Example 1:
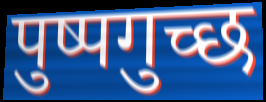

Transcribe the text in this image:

पुष्पगुच्छ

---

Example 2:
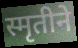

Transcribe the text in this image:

स्मृतीने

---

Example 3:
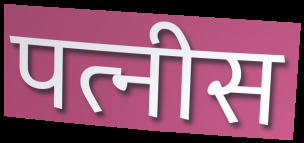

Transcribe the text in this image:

पत्‍नीस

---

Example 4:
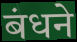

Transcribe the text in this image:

बंधने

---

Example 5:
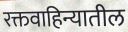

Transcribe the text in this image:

रक्तवाहिन्यातील